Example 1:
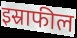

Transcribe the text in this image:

इस्राफील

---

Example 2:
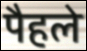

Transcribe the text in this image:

पैहले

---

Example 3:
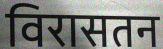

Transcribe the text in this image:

विरासतन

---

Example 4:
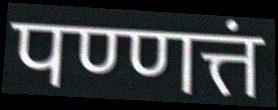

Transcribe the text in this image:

पण्णत्तं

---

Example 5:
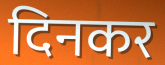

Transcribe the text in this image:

दिनकर